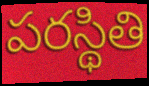
పరస్థితి